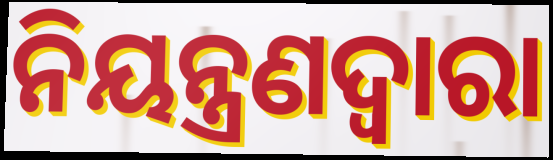
ନିୟନ୍ତ୍ରଣଦ୍ବାରା